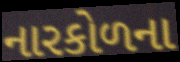
નારકોળના